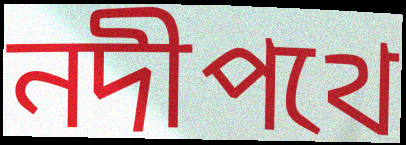
নদীপথে